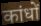
कांधों